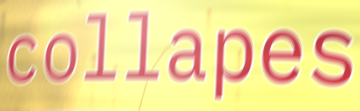
collapes